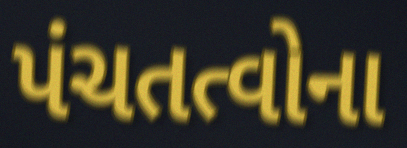
પંચતત્વોના